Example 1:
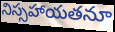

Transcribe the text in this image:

నిస్సహాయతనూ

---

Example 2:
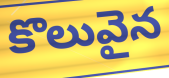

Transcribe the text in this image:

కొలువైన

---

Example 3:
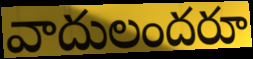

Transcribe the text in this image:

వాదులందరూ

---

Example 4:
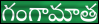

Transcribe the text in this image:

గంగామాత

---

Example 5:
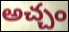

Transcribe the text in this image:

అచ్చం